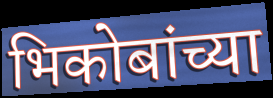
भिकोबांच्या